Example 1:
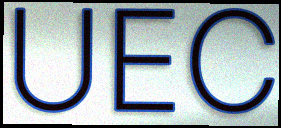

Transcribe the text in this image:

UEC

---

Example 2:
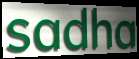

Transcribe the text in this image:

sadha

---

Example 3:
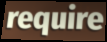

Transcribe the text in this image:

require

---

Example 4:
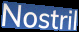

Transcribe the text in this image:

Nostril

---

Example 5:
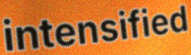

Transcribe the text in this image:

intensified